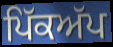
ਪਿੱਕਅੱਪ